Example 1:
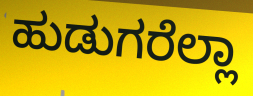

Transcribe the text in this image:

ಹುಡುಗರೆಲ್ಲಾ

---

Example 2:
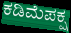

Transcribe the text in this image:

ಕಡಿಮೆಪಕ್ಷ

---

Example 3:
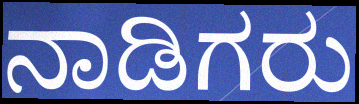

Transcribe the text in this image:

ನಾಡಿಗರು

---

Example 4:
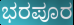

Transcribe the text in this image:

ಭರಪೂರ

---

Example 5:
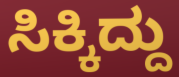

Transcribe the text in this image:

ಸಿಕ್ಕಿದ್ದು